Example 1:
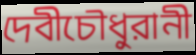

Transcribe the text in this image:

দেবীচৌধুরানী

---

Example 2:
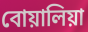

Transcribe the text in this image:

বোয়ালিয়া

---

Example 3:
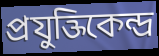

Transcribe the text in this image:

প্রযুক্তিকেন্দ্র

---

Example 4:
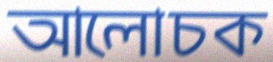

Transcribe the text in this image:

আলোচক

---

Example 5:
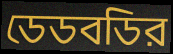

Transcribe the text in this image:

ডেডবডির